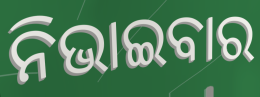
ନିଭାଇବାର